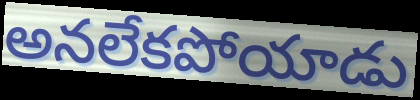
అనలేకపోయాడు